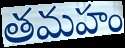
తమహం